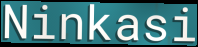
Ninkasi